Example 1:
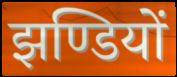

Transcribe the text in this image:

झण्डियों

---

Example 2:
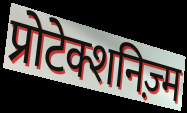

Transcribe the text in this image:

प्रोटेक्शनिज़्म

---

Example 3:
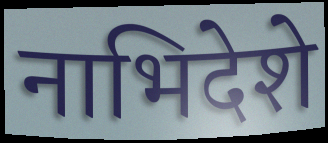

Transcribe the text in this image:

नाभिदेशे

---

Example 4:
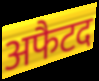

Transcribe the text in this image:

अफैटद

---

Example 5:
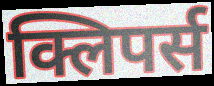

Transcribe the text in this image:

क्लिपर्स